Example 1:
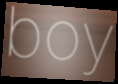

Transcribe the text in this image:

boy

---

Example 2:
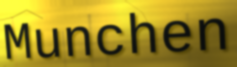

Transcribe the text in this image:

Munchen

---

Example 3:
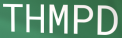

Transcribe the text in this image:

THMPD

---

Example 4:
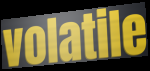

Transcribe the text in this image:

volatile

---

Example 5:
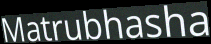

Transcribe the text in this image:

Matrubhasha